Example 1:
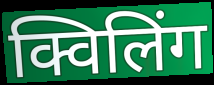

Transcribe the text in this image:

क्विलिंग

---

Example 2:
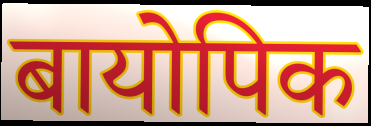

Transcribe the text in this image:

बायोपिक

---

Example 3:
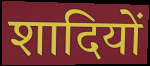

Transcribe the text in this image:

शादियों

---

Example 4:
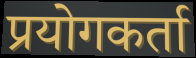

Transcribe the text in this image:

प्रयोगकर्ता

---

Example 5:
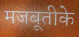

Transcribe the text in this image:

मजबूतीके